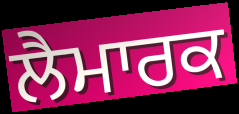
ਲੈਮਾਰਕ